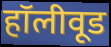
हॉलीवूड